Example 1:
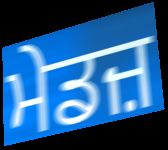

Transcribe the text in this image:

ਮੇਡਜ਼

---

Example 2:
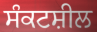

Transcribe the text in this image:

ਸੰਕਟਸ਼ੀਲ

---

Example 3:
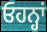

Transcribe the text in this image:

ਓਹਨ੍ਹਾਂ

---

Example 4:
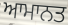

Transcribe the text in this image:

ਆਮਾਨਤ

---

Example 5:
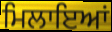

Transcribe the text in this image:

ਮਿਲਾਇਆਂ